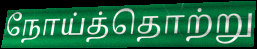
நோய்த்தொற்று